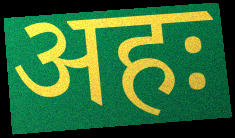
अहः